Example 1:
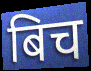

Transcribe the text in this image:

बिच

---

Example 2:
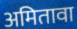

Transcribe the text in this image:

अमितावा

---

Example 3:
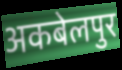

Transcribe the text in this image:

अकबेलपुर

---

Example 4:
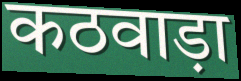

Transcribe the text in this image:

कठवाड़ा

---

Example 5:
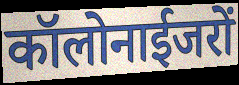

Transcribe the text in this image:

कॉलोनाईजरों